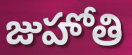
జుహోతి